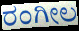
ರಂಗೀಲ